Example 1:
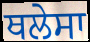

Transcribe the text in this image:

ਥਲੇਸਾ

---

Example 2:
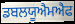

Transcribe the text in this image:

ਡਬਲਯੂਐਮਐਫ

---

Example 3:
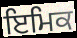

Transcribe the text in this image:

ਇਮਿਕ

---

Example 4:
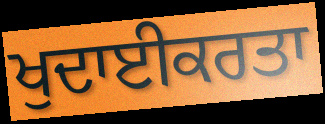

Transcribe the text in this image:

ਖੁਦਾਈਕਰਤਾ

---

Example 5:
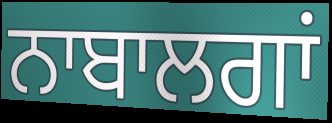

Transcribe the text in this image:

ਨਾਬਾਲਗਾਂ